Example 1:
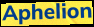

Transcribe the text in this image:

Aphelion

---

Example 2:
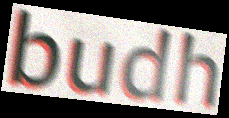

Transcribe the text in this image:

budh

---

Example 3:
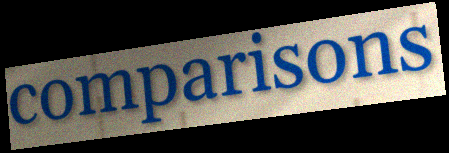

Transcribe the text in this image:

comparisons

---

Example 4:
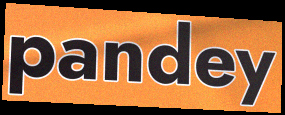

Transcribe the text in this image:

pandey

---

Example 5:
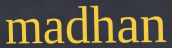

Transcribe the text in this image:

madhan